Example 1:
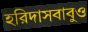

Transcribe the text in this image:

হরিদাসবাবুও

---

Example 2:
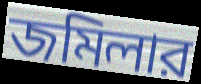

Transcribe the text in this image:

জমিলার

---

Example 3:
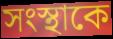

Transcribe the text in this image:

সংস্থাকে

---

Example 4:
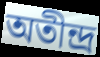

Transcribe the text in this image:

অতীন্দ্র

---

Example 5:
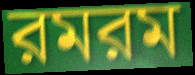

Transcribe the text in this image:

রমরম